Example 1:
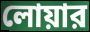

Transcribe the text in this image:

লোয়ার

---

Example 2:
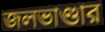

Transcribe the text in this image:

জলভাণ্ডার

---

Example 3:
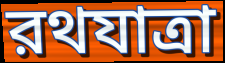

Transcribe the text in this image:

রথযাত্রা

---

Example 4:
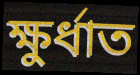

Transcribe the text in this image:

ক্ষুর্ধাত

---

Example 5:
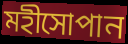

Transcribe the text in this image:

মহীসোপান